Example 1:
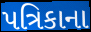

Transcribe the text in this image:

પત્રિકાના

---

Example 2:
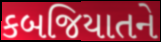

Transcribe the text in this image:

કબજિયાતને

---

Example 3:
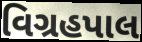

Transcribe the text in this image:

વિગ્રહપાલ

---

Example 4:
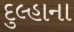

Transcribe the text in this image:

દુલ્હાના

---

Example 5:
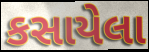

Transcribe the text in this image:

કસાયેલા